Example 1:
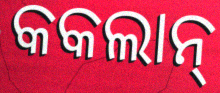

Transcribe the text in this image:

କକଲାନ୍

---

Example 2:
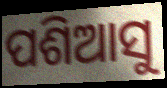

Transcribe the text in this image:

ପଶିଆସୁ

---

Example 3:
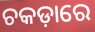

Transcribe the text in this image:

ଚକଡ଼ାରେ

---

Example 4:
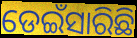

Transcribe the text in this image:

ଡେଇଁସାରିଛି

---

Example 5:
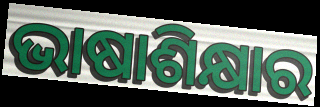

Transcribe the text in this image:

ଭାଷାଶିକ୍ଷାର